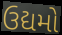
ઉદ્યમો